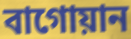
বাগোয়ান